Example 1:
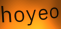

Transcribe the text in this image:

hoyeo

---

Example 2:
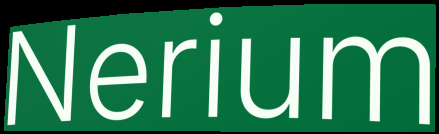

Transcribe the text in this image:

Nerium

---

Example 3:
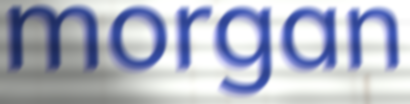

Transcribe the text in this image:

morgan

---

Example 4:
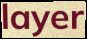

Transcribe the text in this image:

layer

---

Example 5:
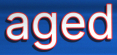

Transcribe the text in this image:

aged